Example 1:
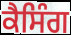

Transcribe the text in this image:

ਕੈਸਿੰਗ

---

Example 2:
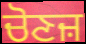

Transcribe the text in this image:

ਚੋਣਜ਼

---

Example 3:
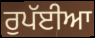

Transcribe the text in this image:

ਰੁਪੱਈਆ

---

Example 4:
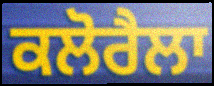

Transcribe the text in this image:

ਕਲੋਰੈਲਾ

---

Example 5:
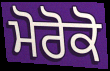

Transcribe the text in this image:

ਮੋਰੋਕੋ